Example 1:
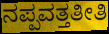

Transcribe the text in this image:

ನಪ್ಪವತ್ತತೀತಿ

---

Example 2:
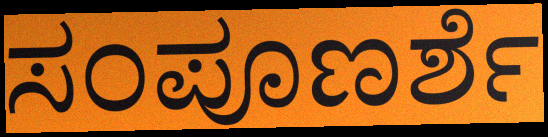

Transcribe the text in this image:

ಸಂಪೂಣರ್ಶೆ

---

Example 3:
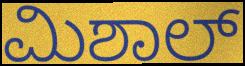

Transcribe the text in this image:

ಮಿಶಾಲ್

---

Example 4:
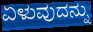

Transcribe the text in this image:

ಏಳುವುದನ್ನು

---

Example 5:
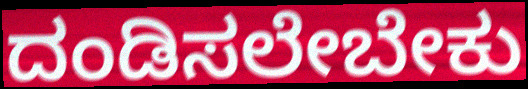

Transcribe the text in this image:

ದಂಡಿಸಲೇಬೇಕು